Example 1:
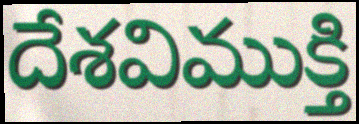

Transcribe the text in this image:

దేశవిముక్తి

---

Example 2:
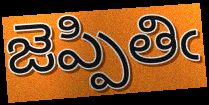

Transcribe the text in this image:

జెప్పితిఁ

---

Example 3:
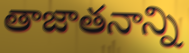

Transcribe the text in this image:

తాజాతనాన్ని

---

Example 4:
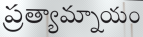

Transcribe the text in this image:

ప్రత్యామ్నాయం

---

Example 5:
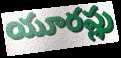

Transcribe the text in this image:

యూరప్లు